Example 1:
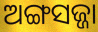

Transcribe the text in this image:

ଅଙ୍ଗସଜ୍ଜା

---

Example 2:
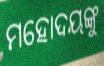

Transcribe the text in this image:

ମହୋଦୟଙ୍କୁ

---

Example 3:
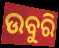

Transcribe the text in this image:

ଉବୁରି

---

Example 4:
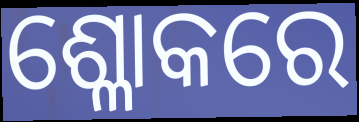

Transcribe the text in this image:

ଶ୍ଳୋକରେ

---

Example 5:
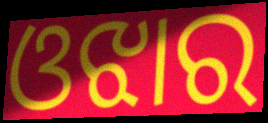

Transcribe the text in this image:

ଓଝାର